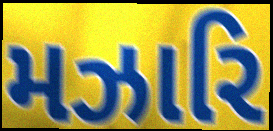
મઝારિ